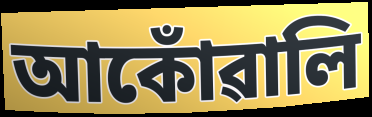
আকোঁৱালি